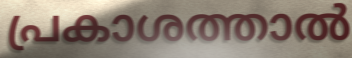
പ്രകാശത്താൽ